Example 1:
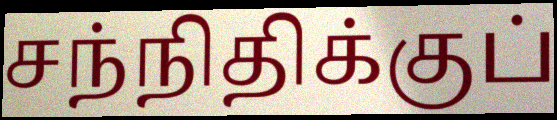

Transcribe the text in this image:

சந்நிதிக்குப்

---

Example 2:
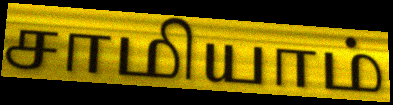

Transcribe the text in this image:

சாமியாம்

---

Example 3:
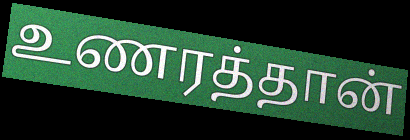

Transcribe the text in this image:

உணரத்தான்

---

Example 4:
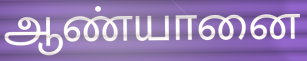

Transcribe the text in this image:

ஆண்யானை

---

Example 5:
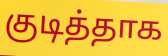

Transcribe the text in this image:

குடித்தாக